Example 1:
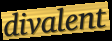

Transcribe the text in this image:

divalent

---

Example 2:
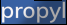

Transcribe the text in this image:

propyl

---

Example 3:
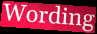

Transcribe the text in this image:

Wording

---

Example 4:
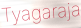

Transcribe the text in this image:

Tyagaraja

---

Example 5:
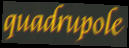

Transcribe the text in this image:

quadrupole